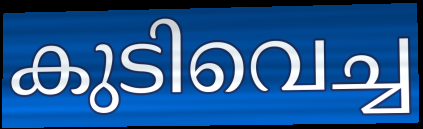
കുടിവെച്ച